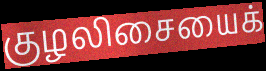
குழலிசையைக்